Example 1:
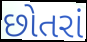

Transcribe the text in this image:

છોતરાં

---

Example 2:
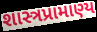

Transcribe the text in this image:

શાસ્ત્રપ્રામાણ્ય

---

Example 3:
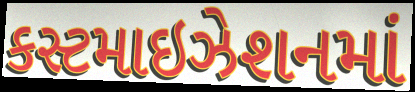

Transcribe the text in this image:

કસ્ટમાઇઝેશનમાં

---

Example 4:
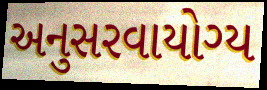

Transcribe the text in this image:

અનુસરવાયોગ્ય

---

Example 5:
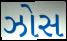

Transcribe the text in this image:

ઝોસ